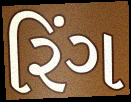
રિંગ